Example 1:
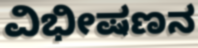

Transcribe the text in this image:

ವಿಭೀಷಣನ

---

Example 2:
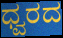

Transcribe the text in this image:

ಧ್ವರದ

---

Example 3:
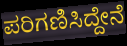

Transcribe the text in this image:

ಪರಿಗಣಿಸಿದ್ದೇನೆ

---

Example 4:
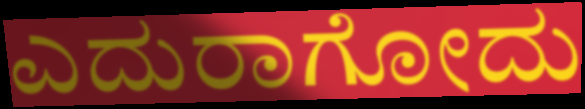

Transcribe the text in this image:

ಎದುರಾಗೋದು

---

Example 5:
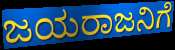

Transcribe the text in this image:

ಜಯರಾಜನಿಗೆ